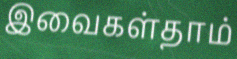
இவைகள்தாம்